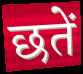
छतें